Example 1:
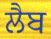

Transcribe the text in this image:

ਲੈਬ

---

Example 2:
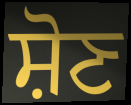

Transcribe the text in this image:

ਸ਼ੋਣ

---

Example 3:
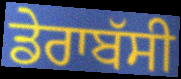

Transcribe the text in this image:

ਡੇਰਾਬੱਸੀ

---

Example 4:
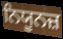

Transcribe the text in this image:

ਨਿਯੂਨਜ਼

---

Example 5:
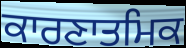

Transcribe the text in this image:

ਕਾਰਣਾਤਮਿਕ